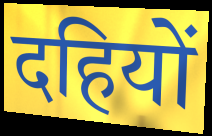
दहियों